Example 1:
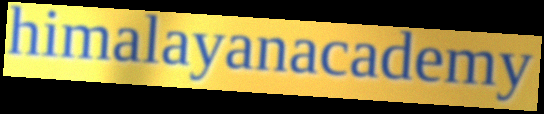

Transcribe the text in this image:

himalayanacademy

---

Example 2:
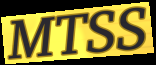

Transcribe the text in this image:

MTSS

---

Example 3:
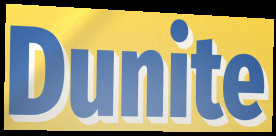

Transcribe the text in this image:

Dunite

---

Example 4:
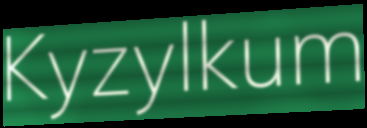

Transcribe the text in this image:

Kyzylkum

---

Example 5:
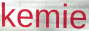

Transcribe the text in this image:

kemie